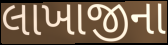
લાખાજીના